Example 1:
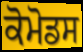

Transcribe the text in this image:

ਕੋਮੋਡਸ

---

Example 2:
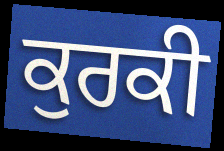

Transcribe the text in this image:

ਕੁਰਕੀ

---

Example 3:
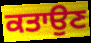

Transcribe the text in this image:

ਕਤਾਉਣ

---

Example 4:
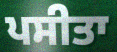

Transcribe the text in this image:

ਪਸੀਤਾ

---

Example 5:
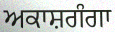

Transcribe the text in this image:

ਅਕਾਸ਼ਗੰਗਾ